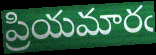
ప్రియమారఁ